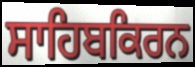
ਸਾਹਿਬਕਿਰਨ